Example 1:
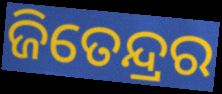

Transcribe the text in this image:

ଜିତେନ୍ଦ୍ରର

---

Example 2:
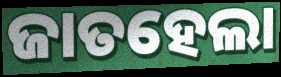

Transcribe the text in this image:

ଜାତହେଲା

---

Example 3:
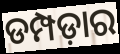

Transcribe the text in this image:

ଡମ୍ପଡ଼ାର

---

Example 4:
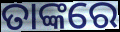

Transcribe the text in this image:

ତାଙ୍କରେ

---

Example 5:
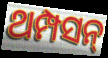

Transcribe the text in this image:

ଥମ୍ପସନ୍